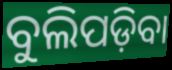
ବୁଲିପଡ଼ିବା